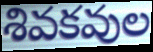
శివకవుల